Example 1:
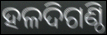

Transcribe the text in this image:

ହଳଦିଗଣ୍ଠି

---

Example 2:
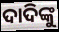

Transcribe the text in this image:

ଦାଦିଙ୍କୁ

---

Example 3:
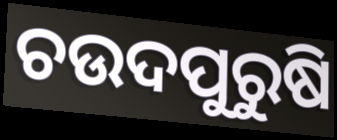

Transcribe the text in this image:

ଚଉଦପୁରୁଷି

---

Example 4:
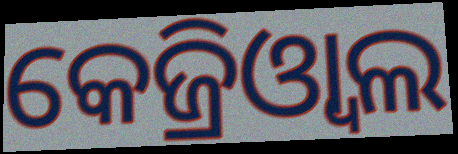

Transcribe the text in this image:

କେଜ୍ରିଓ୍ଵାଲ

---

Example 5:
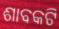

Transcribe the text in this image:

ଶାବକଟି